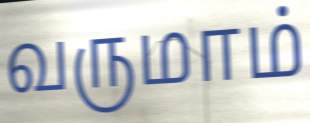
வருமாம்